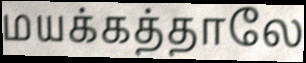
மயக்கத்தாலே